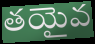
తయైవ